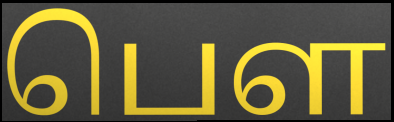
பெள